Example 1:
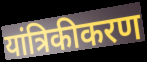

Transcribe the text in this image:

यांत्रिकीकरण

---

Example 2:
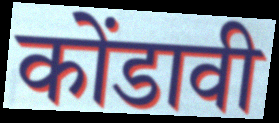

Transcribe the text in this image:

कोंडावी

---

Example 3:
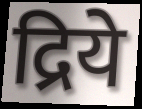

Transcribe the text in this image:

द्रिये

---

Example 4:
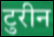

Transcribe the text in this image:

टुरीन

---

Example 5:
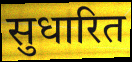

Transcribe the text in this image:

सुधारित